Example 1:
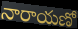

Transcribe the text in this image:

నారాయణో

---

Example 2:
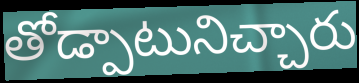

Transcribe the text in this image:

తోడ్పాటునిచ్చారు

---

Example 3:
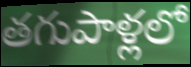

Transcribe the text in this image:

తగుపాళ్లలో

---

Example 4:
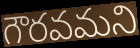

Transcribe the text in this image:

గౌరవమని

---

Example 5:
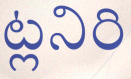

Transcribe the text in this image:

ట్లనిరి